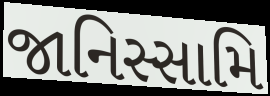
જાનિસ્સામિ